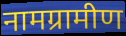
नामग्रामीण